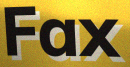
Fax